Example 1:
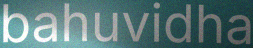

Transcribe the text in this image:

bahuvidha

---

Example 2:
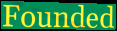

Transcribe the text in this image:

Founded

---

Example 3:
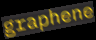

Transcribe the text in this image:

graphene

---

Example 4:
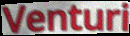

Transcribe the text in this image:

Venturi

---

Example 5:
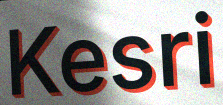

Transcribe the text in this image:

Kesri